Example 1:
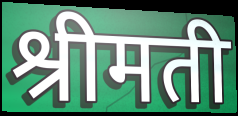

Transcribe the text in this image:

श्रीमती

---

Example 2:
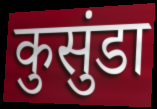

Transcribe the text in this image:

कुसुंडा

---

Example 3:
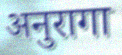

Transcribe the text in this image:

अनुरागा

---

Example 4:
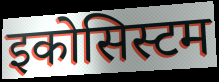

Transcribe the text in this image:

इकोसिस्टम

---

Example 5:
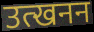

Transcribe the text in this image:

उत्‍खनन